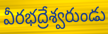
వీరభద్రేశ్వరుండు